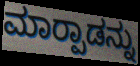
ಮಾರ‍್ಪಾಡನ್ನು